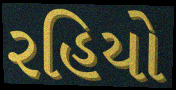
રહિયો